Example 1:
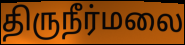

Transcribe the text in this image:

திருநீர்மலை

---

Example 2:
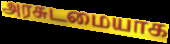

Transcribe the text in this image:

அரசுடமையாக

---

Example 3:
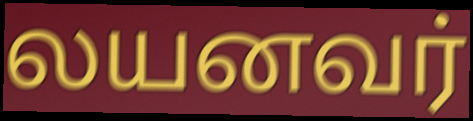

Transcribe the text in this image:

லயனவர்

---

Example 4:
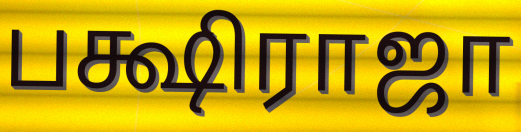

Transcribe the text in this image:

பக்ஷிராஜா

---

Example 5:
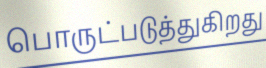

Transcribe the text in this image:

பொருட்படுத்துகிறது